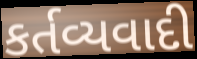
કર્તવ્યવાદી